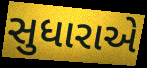
સુધારાએ